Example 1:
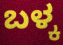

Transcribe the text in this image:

ಬಳ್ಕ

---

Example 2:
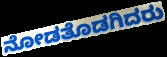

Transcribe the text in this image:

ನೋಡತೊಡಗಿದರು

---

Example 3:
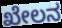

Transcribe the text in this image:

ಖೇಲನ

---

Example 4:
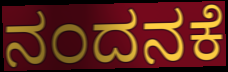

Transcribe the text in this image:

ನಂದನಕೆ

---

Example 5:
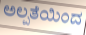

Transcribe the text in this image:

ಅಲ್ಪತೆಯಿಂದ